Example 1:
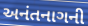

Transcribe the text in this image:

અનંતનાગની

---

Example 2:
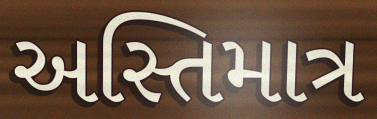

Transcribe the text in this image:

અસ્તિમાત્ર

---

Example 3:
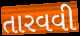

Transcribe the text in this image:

તારવવી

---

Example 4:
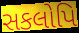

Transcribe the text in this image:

સકલોપિ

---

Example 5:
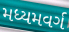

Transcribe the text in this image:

મધ્યમવર્ગ